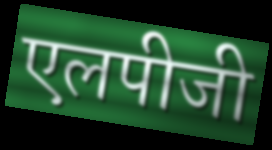
एलपीजी